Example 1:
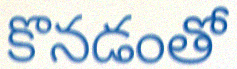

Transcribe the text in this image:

కొనడంతో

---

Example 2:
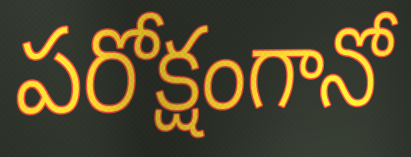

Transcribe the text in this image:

పరోక్షంగానో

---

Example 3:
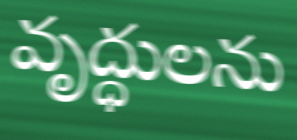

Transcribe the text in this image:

వృద్ధులను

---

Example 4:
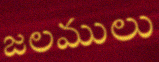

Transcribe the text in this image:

జలములు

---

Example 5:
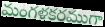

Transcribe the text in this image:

మంగళకరముగా